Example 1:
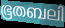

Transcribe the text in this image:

ഭൂതബലി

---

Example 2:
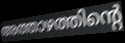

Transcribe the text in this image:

അത്താഴത്തിന്റെ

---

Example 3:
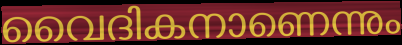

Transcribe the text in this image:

വൈദികനാണെന്നും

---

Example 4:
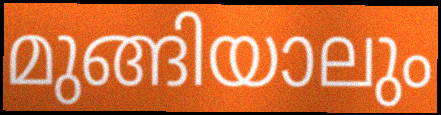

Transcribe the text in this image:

മുങ്ങിയാലും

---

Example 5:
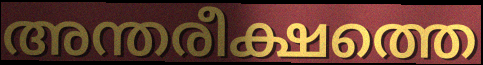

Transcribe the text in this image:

അന്തരീക്ഷത്തെ